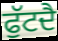
ਫੁੱਟਦੈ